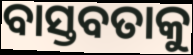
ବାସ୍ତବତାକୁ